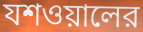
যশওয়ালের